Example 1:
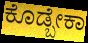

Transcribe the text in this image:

ಕೊಡ್ಬೇಕಾ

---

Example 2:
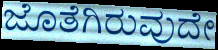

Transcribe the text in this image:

ಜೊತೆಗಿರುವುದೇ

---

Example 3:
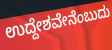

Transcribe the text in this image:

ಉದ್ದೇಶವೇನೆಂಬುದು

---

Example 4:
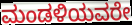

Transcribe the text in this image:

ಮಂಡಳಿಯವರೇ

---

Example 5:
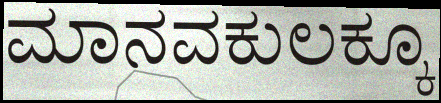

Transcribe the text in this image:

ಮಾನವಕುಲಕ್ಕೂ